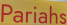
Pariahs